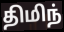
திமிந்